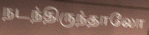
நடந்திருந்தாலோ